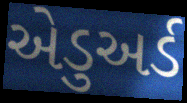
એડુઅર્ડ